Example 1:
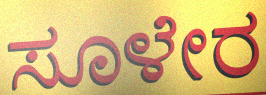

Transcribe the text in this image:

ಸೂಳೇರ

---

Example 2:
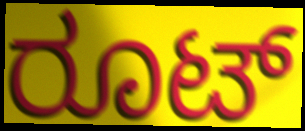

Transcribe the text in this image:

ರೂಟ್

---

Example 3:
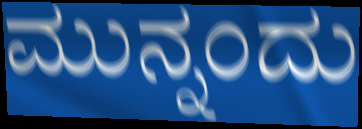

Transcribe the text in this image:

ಮುನ್ನಂದು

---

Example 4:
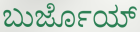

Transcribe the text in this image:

ಬುರ್ಜೊಯ್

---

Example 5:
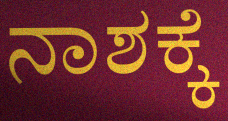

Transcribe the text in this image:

ನಾಶಕ್ಕೆ